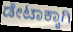
ಡೇಟಾಕ್ಕಾಗಿ